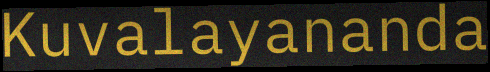
Kuvalayananda